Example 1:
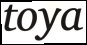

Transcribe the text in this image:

toya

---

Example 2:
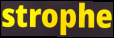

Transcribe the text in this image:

strophe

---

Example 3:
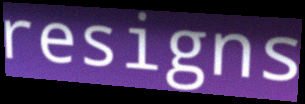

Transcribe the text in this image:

resigns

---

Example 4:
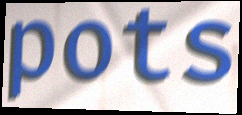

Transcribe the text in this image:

pots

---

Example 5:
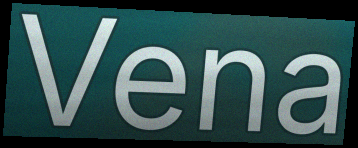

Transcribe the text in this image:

Vena